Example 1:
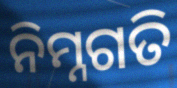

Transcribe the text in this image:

ନିମ୍ନଗତି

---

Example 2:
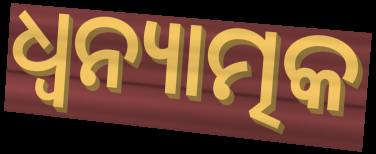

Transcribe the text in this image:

ଧ୍ୱନ୍ୟାତ୍ମକ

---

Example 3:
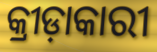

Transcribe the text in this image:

କ୍ରୀଡ଼ାକାରୀ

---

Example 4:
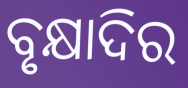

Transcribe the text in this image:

ବୃକ୍ଷାଦିର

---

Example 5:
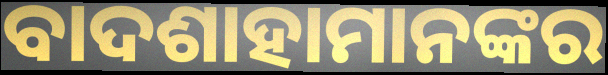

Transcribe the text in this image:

ବାଦଶାହାମାନଙ୍କର